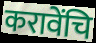
करावेंचि